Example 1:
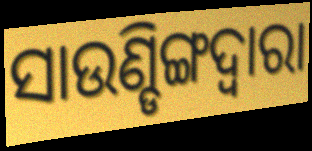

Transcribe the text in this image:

ସାଉଣ୍ଡିଙ୍ଗଦ୍ୱାରା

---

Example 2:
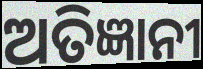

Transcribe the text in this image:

ଅତିଜ୍ଞାନୀ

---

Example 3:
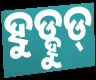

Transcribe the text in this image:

ହୁଡ୍ହୁଡ୍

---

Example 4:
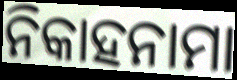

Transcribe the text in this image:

ନିକାହନାମା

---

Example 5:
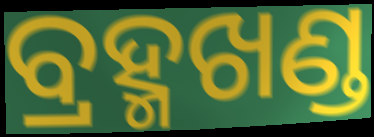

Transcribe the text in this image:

ବ୍ରହ୍ମଖଣ୍ଡ